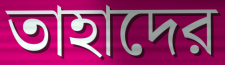
তাহাদের